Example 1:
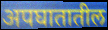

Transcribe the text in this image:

अपघातातील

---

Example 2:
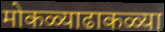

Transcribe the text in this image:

मोकळ्याढाकळ्या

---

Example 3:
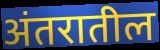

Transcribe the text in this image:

अंतरातील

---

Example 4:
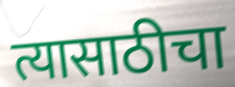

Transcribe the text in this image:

त्यासाठीचा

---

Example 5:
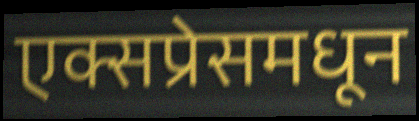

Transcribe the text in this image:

एक्सप्रेसमधून